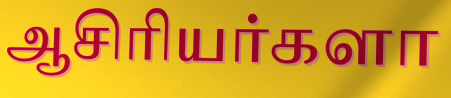
ஆசிரியர்களா